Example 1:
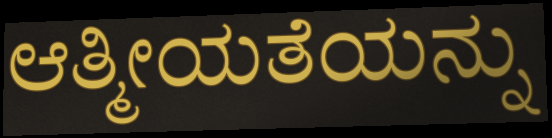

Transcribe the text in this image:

ಆತ್ಮೀಯತೆಯನ್ನು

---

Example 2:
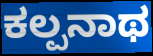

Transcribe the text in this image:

ಕಲ್ಪನಾಥ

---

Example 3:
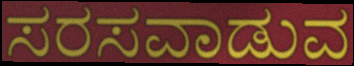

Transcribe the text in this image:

ಸರಸವಾಡುವ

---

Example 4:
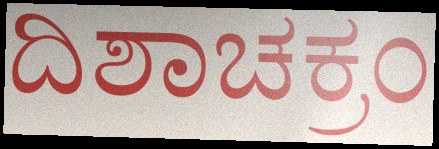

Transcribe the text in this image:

ದಿಶಾಚಕ್ರಂ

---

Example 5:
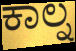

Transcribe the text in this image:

ಕಾಲ್ನ